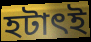
হটাৎই